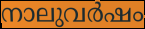
നാലുവർഷം